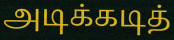
அடிக்கடித்